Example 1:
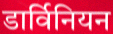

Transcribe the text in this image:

डार्विनियन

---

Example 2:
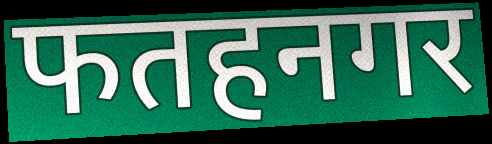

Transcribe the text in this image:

फतहनगर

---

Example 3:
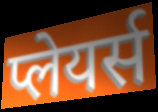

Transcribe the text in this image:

प्लेयर्स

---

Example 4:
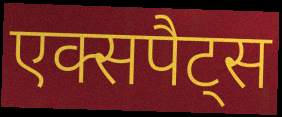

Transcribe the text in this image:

एक्सपैट्स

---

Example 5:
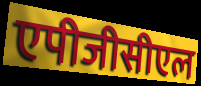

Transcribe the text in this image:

एपीजीसीएल